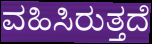
ವಹಿಸಿರುತ್ತದೆ